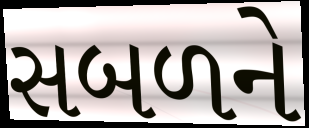
સબળને